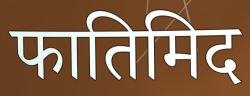
फातिमिद